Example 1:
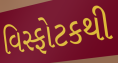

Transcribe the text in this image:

વિસ્ફોટકથી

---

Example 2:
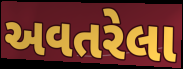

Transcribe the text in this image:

અવતરેલા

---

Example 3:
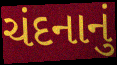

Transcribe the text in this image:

ચંદનાનું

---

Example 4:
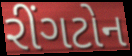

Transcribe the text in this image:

રીંગટોન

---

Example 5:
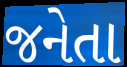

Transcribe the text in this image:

જનેતા